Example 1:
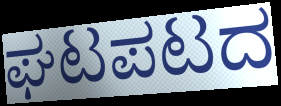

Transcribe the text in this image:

ಘಟಪಟದ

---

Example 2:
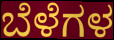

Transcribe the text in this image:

ಬೆಳೆಗಳ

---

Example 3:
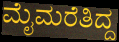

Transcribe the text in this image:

ಮೈಮರೆತಿದ್ದ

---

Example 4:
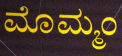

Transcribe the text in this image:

ಮೊಮ್ಮಂ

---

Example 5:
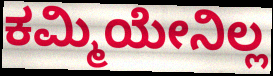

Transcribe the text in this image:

ಕಮ್ಮಿಯೇನಿಲ್ಲ